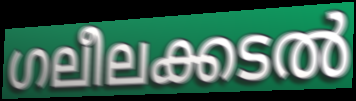
ഗലീലക്കടൽ